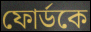
ফোর্ডকে